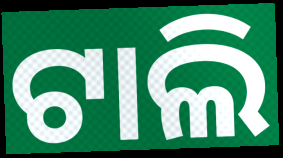
ଟାଲି